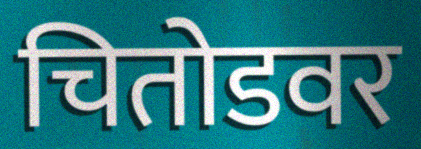
चितोडवर